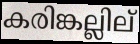
കരിങ്കല്ലില്